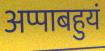
अप्पाबहुयं